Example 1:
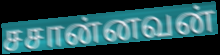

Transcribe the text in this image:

சசான்னவன்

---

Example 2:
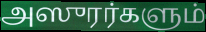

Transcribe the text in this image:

அஸுரர்களும்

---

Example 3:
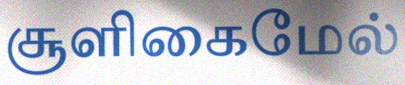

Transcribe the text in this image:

சூளிகைமேல்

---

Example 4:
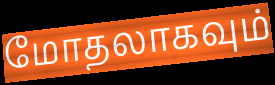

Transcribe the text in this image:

மோதலாகவும்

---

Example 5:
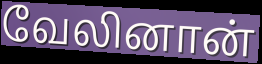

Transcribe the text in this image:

வேலினான்